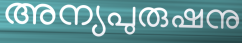
അന്യപുരുഷനു